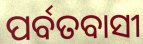
ପର୍ବତବାସୀ